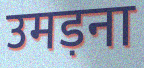
उमड़ना